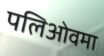
पलिओवमा